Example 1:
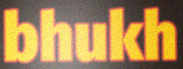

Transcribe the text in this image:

bhukh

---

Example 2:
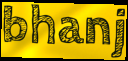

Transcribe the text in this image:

bhanj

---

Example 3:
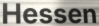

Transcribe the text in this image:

Hessen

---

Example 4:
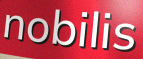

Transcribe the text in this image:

nobilis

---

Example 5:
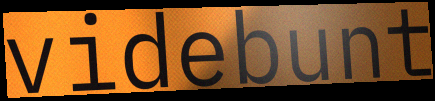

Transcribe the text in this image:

videbunt